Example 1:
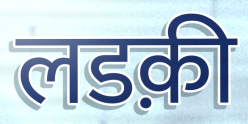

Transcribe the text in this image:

लडक़ी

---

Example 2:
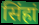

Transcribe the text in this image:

सिंहां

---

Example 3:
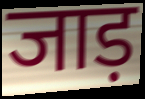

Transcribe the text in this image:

जाड़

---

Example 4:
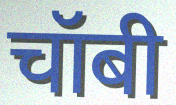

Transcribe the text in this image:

चॉबी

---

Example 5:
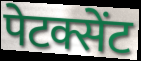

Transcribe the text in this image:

पेटक्सेंट